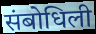
संबोधिली